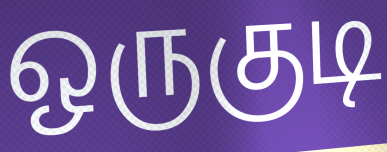
ஒருகுடி